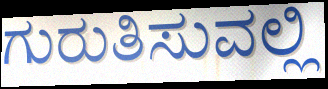
ಗುರುತಿಸುವಲ್ಲಿ